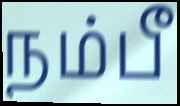
நம்பீ